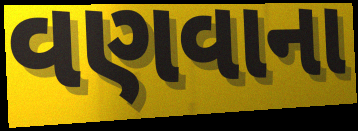
વણવાના